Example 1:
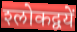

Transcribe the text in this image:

श्लोकद्वयें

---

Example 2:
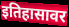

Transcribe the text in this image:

इतिहासावर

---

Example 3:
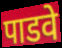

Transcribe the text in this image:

पाडवे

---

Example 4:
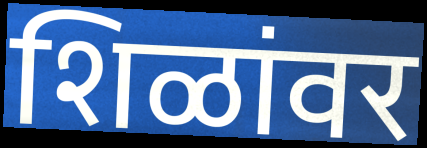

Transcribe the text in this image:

शिळांवर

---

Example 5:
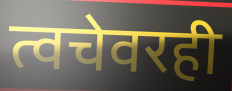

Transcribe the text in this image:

त्वचेवरही